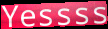
Yessss